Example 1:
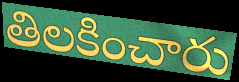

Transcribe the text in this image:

తిలకించారు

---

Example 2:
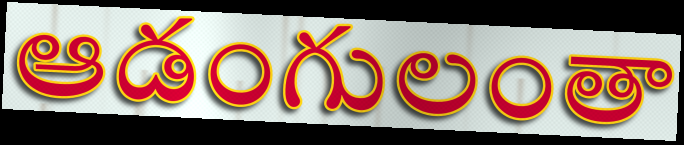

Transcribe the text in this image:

ఆడంగులంతా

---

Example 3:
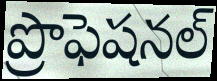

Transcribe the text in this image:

ప్రొఫెషనల్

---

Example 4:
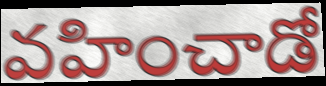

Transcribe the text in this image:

వహించాడో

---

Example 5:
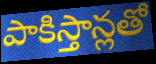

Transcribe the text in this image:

పాకిస్తాన్లతో